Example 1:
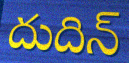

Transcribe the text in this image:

దుదిన్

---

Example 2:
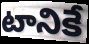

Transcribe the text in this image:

టానికే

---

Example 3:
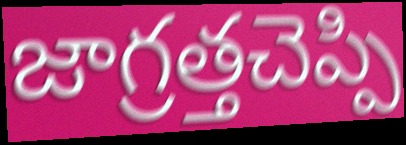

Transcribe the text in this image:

జాగ్రత్తచెప్పి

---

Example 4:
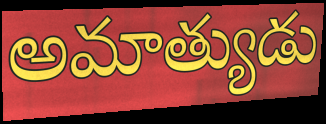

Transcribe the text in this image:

అమాత్యుడు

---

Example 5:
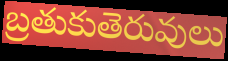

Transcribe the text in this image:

బ్రతుకుతెరువులు